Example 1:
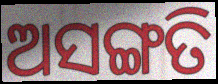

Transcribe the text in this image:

ଅସଙ୍ଗତି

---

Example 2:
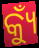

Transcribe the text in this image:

କ୍ୟୁଁ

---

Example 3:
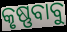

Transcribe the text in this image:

କୃଷ୍ଣବାବୁ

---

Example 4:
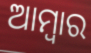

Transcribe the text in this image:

ଆମ୍ବାର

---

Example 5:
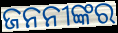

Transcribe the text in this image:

ଜନନୀଙ୍କର